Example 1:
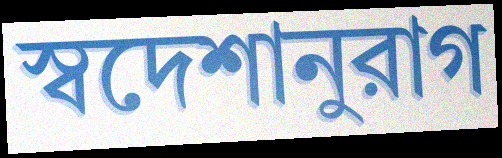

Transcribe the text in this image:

স্বদেশানুরাগ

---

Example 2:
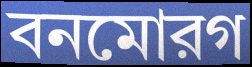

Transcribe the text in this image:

বনমোরগ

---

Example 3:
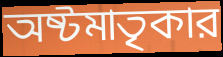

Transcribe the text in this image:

অষ্টমাতৃকার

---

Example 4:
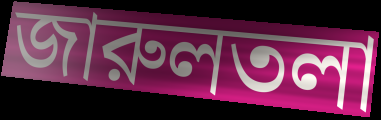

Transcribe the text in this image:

জারুলতলা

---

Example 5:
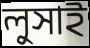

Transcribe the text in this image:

লুসাই